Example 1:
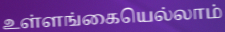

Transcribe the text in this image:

உள்ளங்கையெல்லாம்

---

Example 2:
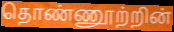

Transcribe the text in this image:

தொண்ணூற்றின்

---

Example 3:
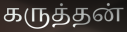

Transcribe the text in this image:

கருத்தன்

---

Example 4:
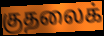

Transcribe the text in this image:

குதலைக்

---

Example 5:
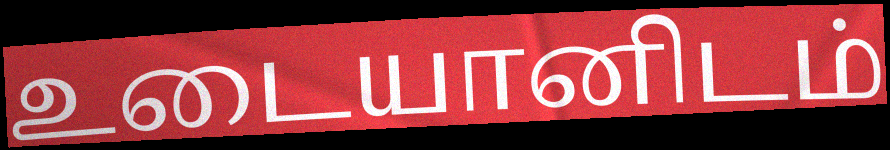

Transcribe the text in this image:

உடையானிடம்